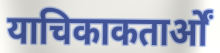
याचिकाकतार्ओं